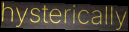
hysterically